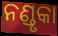
ନଣ୍ଡୃକା